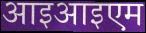
आइआइएम